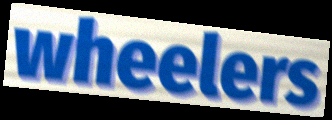
wheelers